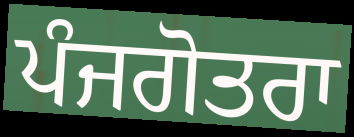
ਪੰਜਗੋਤਰਾ